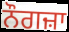
ਨੌਗਜ਼ਾ